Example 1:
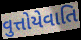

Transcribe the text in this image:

વુત્તોયેવાતિ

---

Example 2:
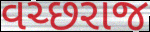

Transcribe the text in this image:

વચ્છરાજ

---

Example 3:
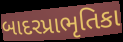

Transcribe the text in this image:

બાદરપ્રાભૃતિકા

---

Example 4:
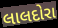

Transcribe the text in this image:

લાલદોરા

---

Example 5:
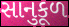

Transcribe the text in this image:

સાનુકૂળ